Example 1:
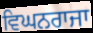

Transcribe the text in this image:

ਵਿਘਨਰਾਜਾ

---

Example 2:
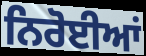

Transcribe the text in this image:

ਨਿਰੋਈਆਂ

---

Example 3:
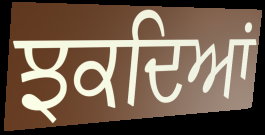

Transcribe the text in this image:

ਝਕਦਿਆਂ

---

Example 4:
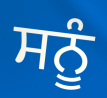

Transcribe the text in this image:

ਸਨੂੰ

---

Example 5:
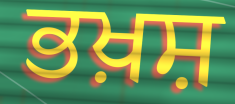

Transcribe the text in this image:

ਭਖ਼ਸ਼